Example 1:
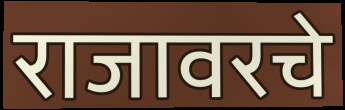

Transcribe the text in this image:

राजावरचे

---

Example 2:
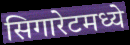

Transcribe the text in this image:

सिगारेटमध्ये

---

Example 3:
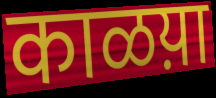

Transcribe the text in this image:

काळय़ा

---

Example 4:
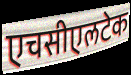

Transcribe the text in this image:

एचसीएलटेक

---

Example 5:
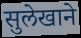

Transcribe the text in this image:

सुलेखाने